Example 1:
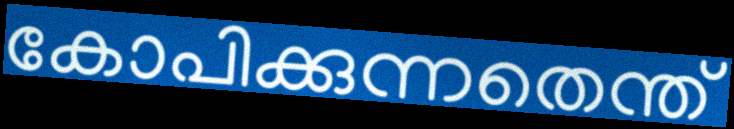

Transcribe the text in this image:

കോപിക്കുന്നതെന്ത്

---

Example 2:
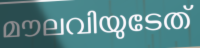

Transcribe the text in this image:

മൗലവിയുടേത്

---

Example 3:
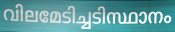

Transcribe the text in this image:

വിലമേടിച്ചടിസ്ഥാനം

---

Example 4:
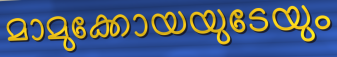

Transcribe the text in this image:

മാമുക്കോയയുടേയും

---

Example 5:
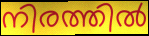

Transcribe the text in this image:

നിരത്തിൽ